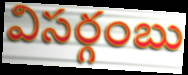
విసర్గంబు